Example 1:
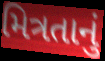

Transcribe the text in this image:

મિત્રતાનું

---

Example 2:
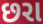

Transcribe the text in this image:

છરા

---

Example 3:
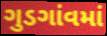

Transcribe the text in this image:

ગુડગાંવમાં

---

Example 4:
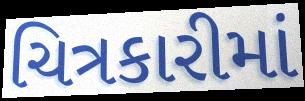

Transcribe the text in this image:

ચિત્રકારીમાં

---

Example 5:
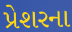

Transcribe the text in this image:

પ્રેશરના